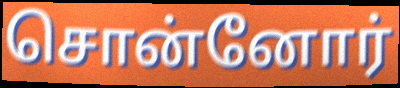
சொன்னோர்